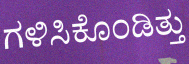
ಗಳಿಸಿಕೊಂಡಿತ್ತು